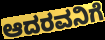
ಆದರವನಿಗೆ